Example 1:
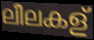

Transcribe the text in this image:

ലീലകള്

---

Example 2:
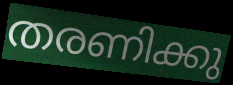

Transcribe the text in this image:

തരണിക്കു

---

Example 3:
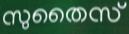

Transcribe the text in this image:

സുതൈസ്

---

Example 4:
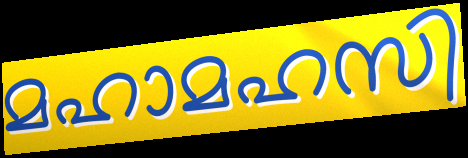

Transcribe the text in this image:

മഹാമഹസി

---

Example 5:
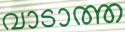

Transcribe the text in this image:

വാടാത്ത